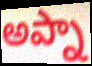
అప్నా